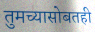
तुमच्यासोबतही